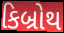
કિબ્રોથ